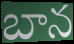
బాన